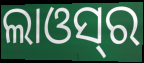
ଲାଓସ୍‌ର